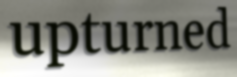
upturned